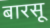
बारसू